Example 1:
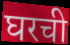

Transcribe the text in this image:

घरची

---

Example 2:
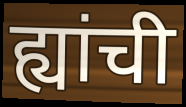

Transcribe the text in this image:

ह्यांची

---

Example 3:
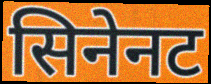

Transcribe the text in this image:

सिनेनट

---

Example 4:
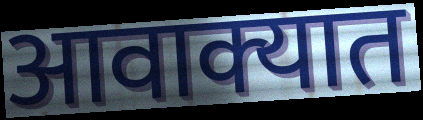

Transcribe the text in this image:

आवाक्‍यात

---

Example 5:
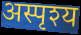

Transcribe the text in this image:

अस्पृश्य